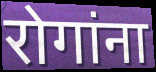
रोगांना